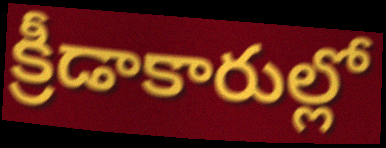
క్రీడాకారుల్లో